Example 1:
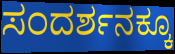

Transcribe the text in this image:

ಸಂದರ್ಶನಕ್ಕೂ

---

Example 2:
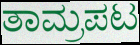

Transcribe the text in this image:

ತಾಮ್ರಪಟ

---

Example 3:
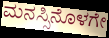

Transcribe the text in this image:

ಮನಸ್ಸಿನೊಳಗೇ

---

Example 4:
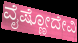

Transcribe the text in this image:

ವೈಷ್ಣೋದೇವಿ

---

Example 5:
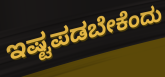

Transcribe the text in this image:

ಇಷ್ಟಪಡಬೇಕೆಂದು